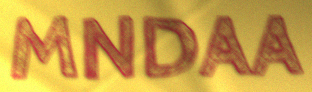
MNDAA